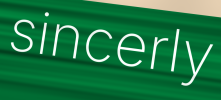
sincerly